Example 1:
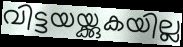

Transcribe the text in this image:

വിട്ടയയ്ക്കുകയില്ല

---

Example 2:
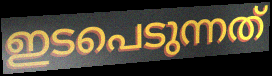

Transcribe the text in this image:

ഇടപെടുന്നത്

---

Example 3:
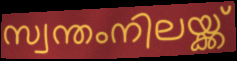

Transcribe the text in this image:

സ്വന്തംനിലയ്ക്ക്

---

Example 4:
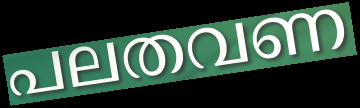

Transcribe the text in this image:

പലതവണ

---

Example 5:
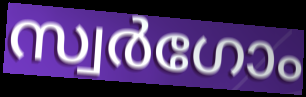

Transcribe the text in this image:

സ്വർഗോം